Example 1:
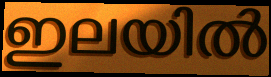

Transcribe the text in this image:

ഇലയിൽ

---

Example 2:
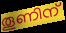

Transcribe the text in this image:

തൂണിന്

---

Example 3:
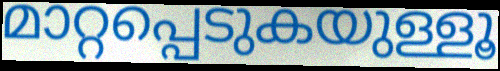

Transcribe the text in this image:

മാറ്റപ്പെടുകയുള്ളൂ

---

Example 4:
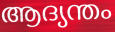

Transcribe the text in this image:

ആദ്യന്തം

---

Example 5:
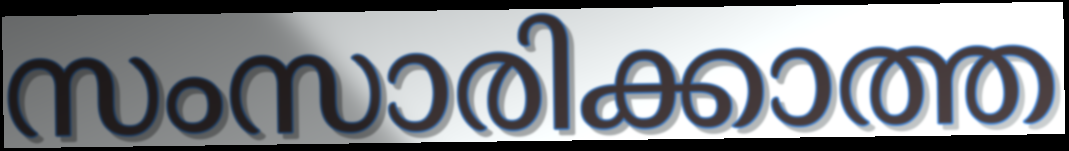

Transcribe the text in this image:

സംസാരിക്കാത്ത